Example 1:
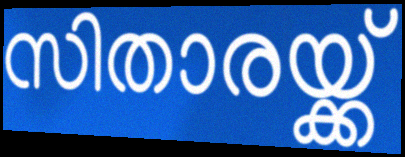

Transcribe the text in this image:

സിതാരയ്ക്ക്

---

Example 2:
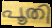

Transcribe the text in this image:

പൂതി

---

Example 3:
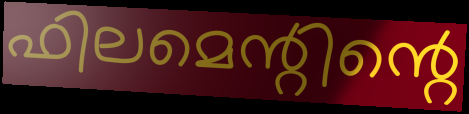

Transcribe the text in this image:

ഫിലമെന്റിന്റെ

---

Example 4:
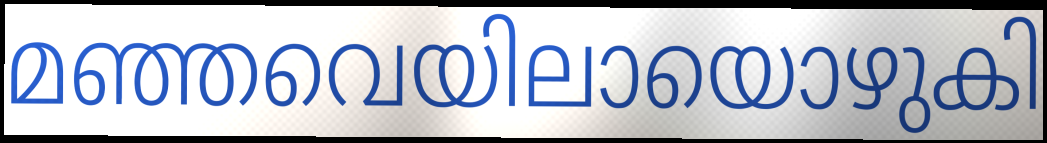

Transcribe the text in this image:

മഞ്ഞവെയിലായൊഴുകി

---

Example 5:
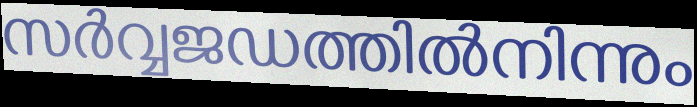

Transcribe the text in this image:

സർവ്വജഡത്തിൽനിന്നും